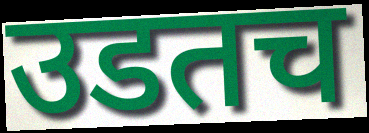
उडतच